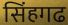
सिंहगढ